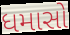
ધમાસો